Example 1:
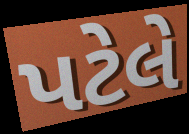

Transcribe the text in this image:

પટેલે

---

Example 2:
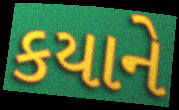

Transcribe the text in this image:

કયાને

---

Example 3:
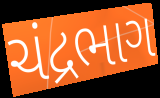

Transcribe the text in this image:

ચંદ્રભાગ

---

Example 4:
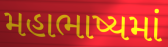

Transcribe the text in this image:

મહાભાષ્યમાં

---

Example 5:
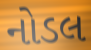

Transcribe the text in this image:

નોડલ